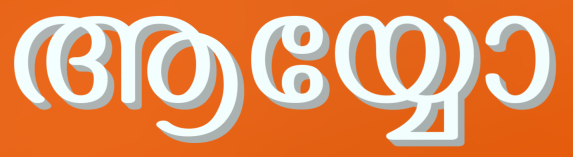
ആയ്യോ